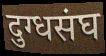
दुग्धसंघ